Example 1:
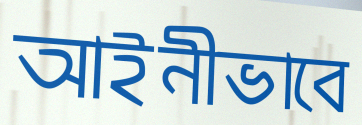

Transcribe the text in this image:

আইনীভাবে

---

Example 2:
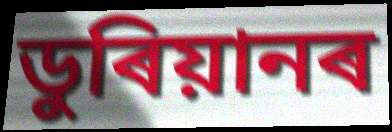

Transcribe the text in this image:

ডুৰিয়ানৰ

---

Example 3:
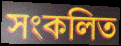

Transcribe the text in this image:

সংকলিত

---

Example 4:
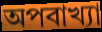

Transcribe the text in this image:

অপবাখ্যা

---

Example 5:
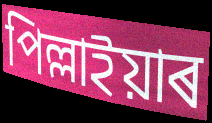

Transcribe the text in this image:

পিল্লাইয়াৰ